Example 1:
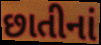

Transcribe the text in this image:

છાતીનાં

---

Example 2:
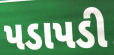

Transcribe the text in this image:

પડાપડી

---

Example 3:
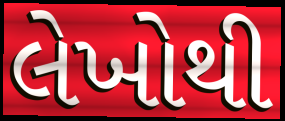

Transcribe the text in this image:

લેખોથી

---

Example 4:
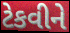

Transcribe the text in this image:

ટેકવીને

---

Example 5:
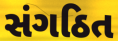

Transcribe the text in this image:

સંગઠિત